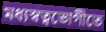
মধ্যস্বত্বভোগীতে